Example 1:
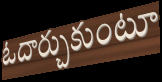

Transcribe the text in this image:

ఓదార్చుకుంటూ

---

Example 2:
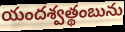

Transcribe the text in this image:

యందశ్వత్థంబును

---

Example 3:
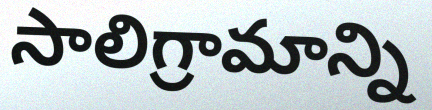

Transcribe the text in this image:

సాలిగ్రామాన్ని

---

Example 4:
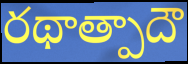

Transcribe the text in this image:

రథాత్పాదౌ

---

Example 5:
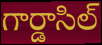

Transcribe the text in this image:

గార్డాసిల్